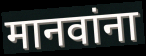
मानवांना